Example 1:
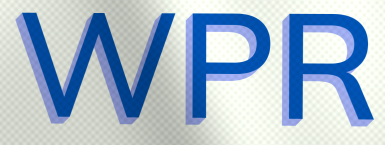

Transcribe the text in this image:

WPR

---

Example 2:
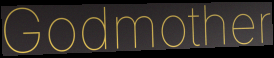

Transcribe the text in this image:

Godmother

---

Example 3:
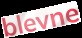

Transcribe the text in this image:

blevne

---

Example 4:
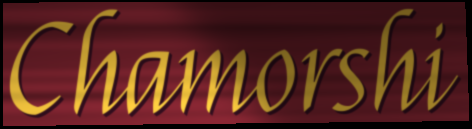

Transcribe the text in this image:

Chamorshi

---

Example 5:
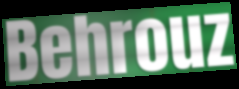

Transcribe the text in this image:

Behrouz